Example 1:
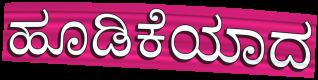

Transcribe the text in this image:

ಹೂಡಿಕೆಯಾದ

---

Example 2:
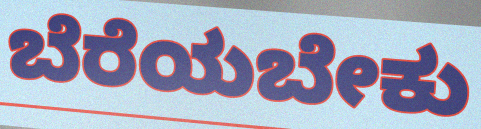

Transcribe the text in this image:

ಬೆರೆಯಬೇಕು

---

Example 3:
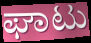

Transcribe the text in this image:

ಘಾಟು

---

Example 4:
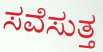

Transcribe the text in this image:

ಸವೆಸುತ್ತ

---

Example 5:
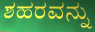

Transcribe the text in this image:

ಶಹರವನ್ನು